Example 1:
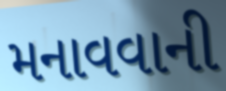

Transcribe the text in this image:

મનાવવાની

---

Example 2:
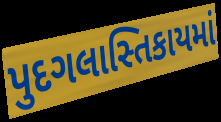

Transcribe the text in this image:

પુદગલાસ્તિકાયમાં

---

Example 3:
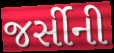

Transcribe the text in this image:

જર્સીની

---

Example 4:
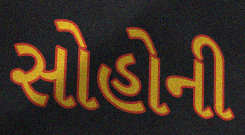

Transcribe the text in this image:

સોહોની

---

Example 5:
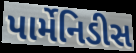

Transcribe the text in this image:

પાર્મેનિડીસ